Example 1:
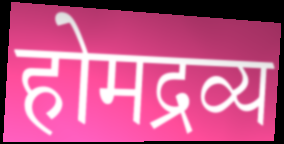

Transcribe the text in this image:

होमद्रव्य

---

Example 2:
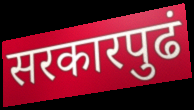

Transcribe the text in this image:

सरकारपुढं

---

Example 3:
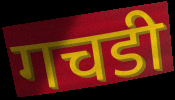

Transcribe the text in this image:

गचडी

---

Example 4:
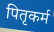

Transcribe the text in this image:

पितृकर्म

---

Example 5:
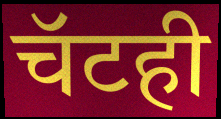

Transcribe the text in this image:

चॅटही